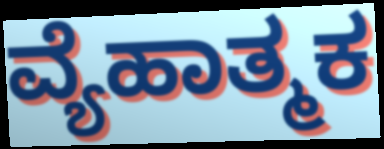
ವ್ಯೆಹಾತ್ಮಕ